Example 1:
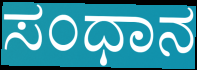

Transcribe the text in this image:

ಸಂಧಾನ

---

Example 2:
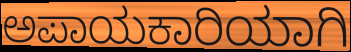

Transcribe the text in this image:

ಅಪಾಯಕಾರಿಯಾಗಿ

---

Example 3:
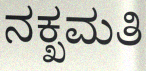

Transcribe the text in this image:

ನಕ್ಖಮತಿ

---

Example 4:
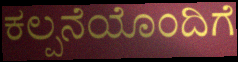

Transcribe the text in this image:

ಕಲ್ಪನೆಯೊಂದಿಗೆ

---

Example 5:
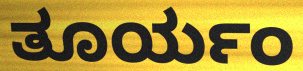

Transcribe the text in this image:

ತೂರ್ಯಂ